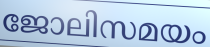
ജോലിസമയം